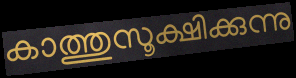
കാത്തുസൂക്ഷിക്കുന്നു